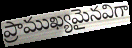
ప్రాముఖ్యమైనవిగా